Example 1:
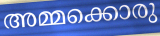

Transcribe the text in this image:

അമ്മക്കൊരു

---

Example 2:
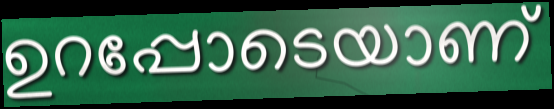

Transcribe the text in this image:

ഉറപ്പോടെയാണ്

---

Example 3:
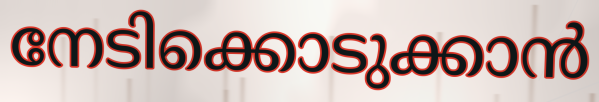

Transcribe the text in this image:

നേടിക്കൊടുക്കാൻ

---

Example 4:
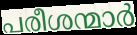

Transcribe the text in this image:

പരീശന്മാർ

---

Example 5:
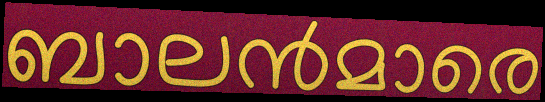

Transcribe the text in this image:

ബാലൻമാരെ